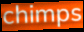
chimps